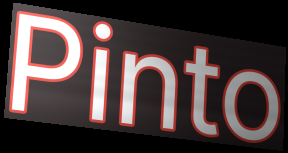
Pinto